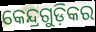
କେନ୍ଦ୍ରଗୁଡ଼ିକର